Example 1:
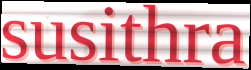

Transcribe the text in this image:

susithra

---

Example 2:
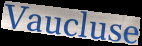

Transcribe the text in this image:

Vaucluse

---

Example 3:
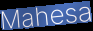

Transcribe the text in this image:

Mahesa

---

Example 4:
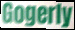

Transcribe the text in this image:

Gogerly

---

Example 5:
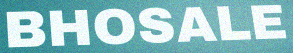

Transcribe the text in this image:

BHOSALE